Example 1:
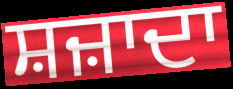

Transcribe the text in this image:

ਸ਼ਜ਼ਾਦਾ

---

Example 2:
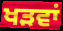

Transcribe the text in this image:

ਖੜਵਾਂ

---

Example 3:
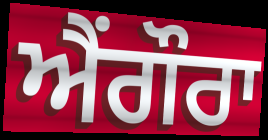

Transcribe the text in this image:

ਐਂਗੌਰਾ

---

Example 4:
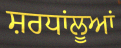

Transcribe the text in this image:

ਸ਼ਰਧਾਂਲੂਆਂ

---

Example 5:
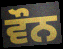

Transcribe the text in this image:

ਵੌਨ